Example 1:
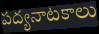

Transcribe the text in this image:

పద్యనాటకాలు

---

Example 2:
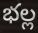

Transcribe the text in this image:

భల్ల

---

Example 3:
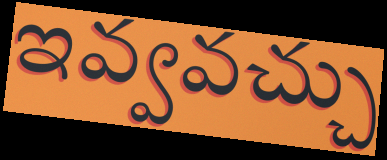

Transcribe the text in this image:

ఇవ్వవచ్చు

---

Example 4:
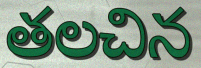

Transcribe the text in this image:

తలచిన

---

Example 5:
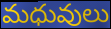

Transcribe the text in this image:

మధువులు